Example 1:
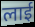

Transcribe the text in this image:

लाई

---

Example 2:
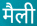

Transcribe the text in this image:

मैली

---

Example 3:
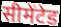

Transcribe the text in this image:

सीमेंटेड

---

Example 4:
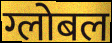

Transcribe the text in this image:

ग्लोबल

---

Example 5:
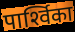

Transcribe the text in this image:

पार्श्विका